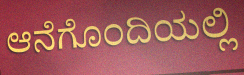
ಆನೆಗೊಂದಿಯಲ್ಲಿ